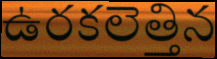
ఉరకలెత్తిన